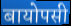
बायोपसी